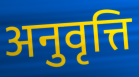
अनुवृत्ति